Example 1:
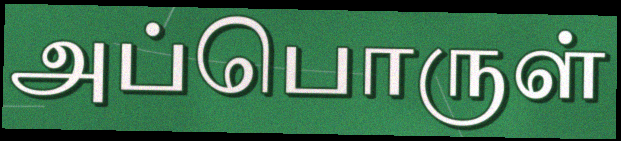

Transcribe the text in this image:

அப்பொருள்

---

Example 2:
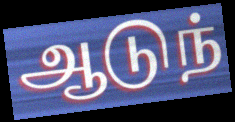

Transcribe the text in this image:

ஆடுந்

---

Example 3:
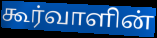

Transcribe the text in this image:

கூர்வாளின்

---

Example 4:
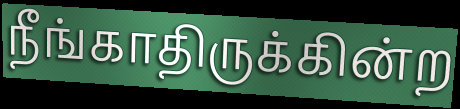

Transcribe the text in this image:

நீங்காதிருக்கின்ற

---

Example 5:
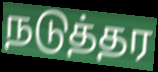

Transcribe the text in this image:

நடுத்தர